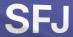
SFJ